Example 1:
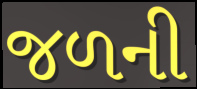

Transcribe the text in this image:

જળની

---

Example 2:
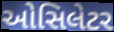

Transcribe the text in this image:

ઓસિલેટર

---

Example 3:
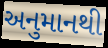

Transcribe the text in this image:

અનુમાનથી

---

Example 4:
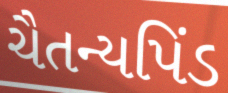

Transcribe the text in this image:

ચૈતન્યપિંડ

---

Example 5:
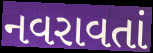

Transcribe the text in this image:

નવરાવતાં